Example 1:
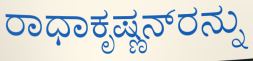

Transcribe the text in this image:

ರಾಧಾಕೃಷ್ಣನ್‌ರನ್ನು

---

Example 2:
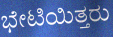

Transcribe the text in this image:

ಭೇಟಿಯಿತ್ತರು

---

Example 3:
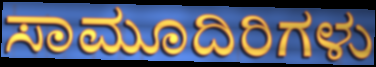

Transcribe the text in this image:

ಸಾಮೂದಿರಿಗಳು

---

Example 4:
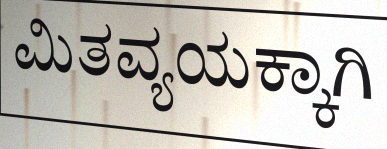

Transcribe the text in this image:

ಮಿತವ್ಯಯಕ್ಕಾಗಿ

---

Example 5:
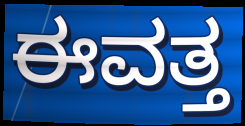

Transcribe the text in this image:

ಈವತ್ತ